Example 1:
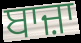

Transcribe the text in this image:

ਬਾਜ਼ਾ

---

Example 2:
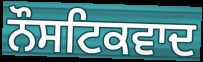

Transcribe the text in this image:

ਨੌਸਟਿਕਵਾਦ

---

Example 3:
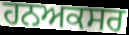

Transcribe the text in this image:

ਹਨਅਕਸਰ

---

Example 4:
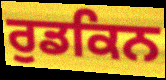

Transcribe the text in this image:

ਰੁਡਕਿਨ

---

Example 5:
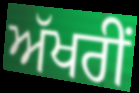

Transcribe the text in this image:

ਅੱਖਰੀਂ